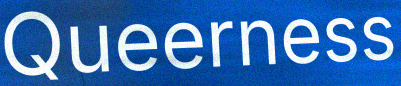
Queerness